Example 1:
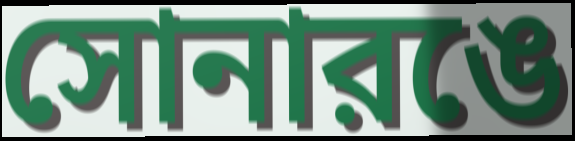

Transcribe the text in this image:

সোনারঙে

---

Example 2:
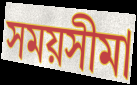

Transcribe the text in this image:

সময়সীমা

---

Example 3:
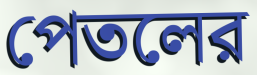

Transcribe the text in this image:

পেতলের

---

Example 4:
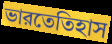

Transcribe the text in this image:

ভারতেতিহাস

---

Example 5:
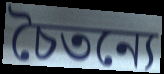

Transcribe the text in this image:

চৈতন্যে